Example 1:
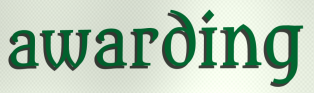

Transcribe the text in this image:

awarding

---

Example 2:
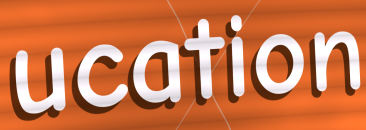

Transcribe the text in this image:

ucation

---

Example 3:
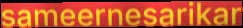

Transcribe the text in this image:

sameernesarikar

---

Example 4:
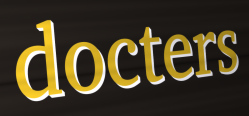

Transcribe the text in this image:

docters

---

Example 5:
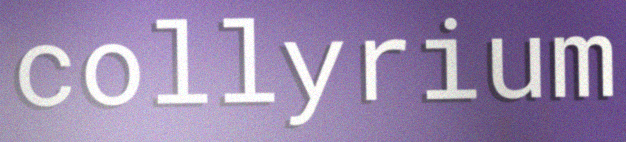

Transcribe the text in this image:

collyrium